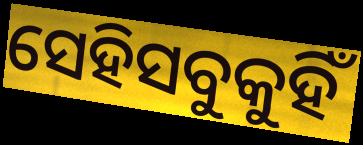
ସେହିସବୁକୁହିଁ